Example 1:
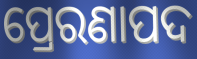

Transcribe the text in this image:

ପ୍ରେରଣାପଦ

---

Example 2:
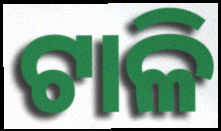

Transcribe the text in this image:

ଟାଳି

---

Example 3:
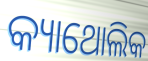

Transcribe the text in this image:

କ୍ୟାଥୋଲିକ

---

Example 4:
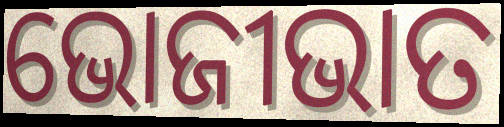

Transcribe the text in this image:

ଭୋଜୀଭାତ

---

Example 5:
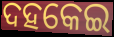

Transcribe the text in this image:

ଦହକେଇ